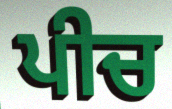
ਪੀਚ